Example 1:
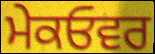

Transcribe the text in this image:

ਮੇਕਓਵਰ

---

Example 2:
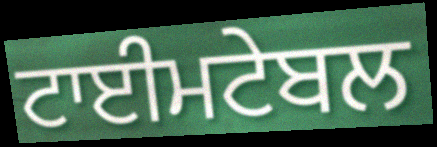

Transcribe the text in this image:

ਟਾਈਮਟੇਬਲ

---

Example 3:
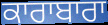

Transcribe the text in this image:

ਕਾਰਾਬਾਰਾ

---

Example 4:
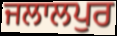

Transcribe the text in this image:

ਜਲਾਲਪੁਰ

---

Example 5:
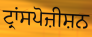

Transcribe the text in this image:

ਟ੍ਰਾਂਸਪੋਜ਼ੀਸ਼ਨ